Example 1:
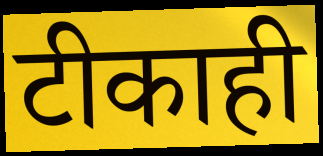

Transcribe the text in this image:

टीकाही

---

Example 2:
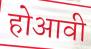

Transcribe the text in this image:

होआवी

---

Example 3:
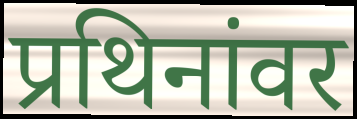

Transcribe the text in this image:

प्रथिनांवर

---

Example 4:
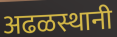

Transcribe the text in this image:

अढळस्थानी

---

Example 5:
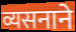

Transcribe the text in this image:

व्यसनाने